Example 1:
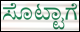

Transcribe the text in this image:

ಸೊಟ್ಟಾಗೆ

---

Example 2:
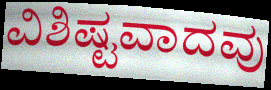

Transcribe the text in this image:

ವಿಶಿಷ್ಟವಾದವು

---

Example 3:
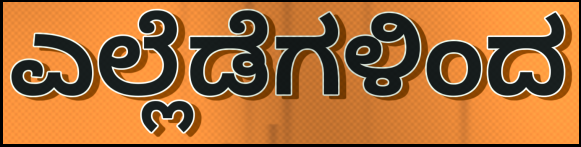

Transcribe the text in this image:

ಎಲ್ಲೆಡೆಗಳಿಂದ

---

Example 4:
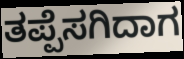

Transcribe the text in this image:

ತಪ್ಪೆಸಗಿದಾಗ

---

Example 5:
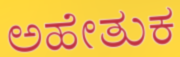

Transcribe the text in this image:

ಅಹೇತುಕ